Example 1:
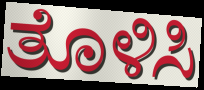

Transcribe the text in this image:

ತೊಳಿಸಿ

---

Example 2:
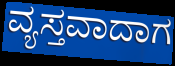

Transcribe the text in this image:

ವ್ಯಸ್ತವಾದಾಗ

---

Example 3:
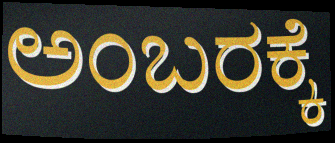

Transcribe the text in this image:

ಅಂಬರಕ್ಕೆ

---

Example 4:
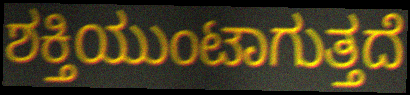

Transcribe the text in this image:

ಶಕ್ತಿಯುಂಟಾಗುತ್ತದೆ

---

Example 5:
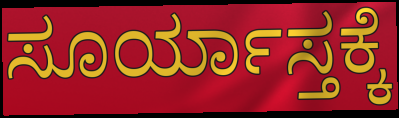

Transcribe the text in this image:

ಸೂರ್ಯಾಸ್ತಕ್ಕೆ